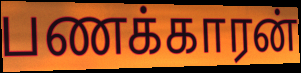
பணக்காரன்